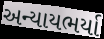
અન્યાયભર્યા